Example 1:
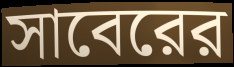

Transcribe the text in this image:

সাবেরের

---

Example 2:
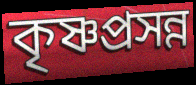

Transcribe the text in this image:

কৃষ্ণপ্রসন্ন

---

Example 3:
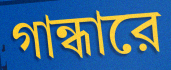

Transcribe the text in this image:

গান্ধারে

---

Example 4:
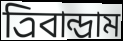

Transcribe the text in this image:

ত্রিবান্দ্রাম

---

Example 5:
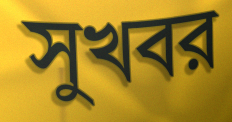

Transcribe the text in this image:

সুখবর